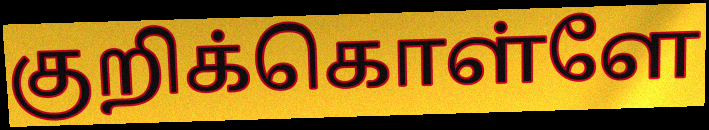
குறிக்கொள்ளே